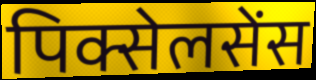
पिक्सेलसेंस